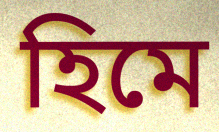
হিমে